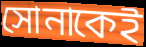
সোনাকেই